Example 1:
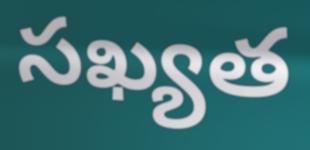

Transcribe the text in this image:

సఖ్యత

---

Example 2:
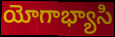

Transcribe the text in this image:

యోగాభ్యాసి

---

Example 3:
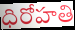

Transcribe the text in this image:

ధిరోహతి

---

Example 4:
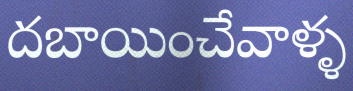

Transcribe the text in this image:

దబాయించేవాళ్ళ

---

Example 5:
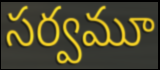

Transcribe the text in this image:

సర్వమూ